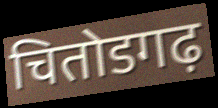
चितोडगढ़